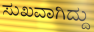
ಸುಖವಾಗಿದ್ದು